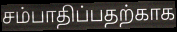
சம்பாதிப்பதற்காக